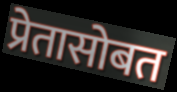
प्रेतासोबत